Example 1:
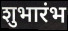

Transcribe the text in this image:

शुभारंभ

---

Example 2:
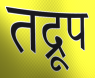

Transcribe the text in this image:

तद्रूप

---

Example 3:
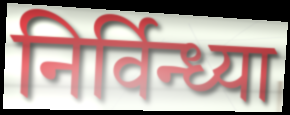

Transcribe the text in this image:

निर्विन्ध्या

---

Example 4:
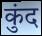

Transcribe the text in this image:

कुंद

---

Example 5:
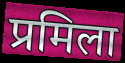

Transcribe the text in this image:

प्रमिला